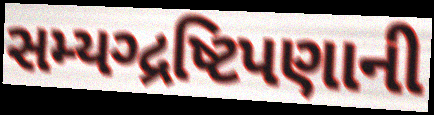
સમ્યગ્દ્રષ્ટિપણાની